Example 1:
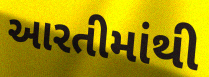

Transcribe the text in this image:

આરતીમાંથી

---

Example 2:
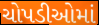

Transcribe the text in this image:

ચોપડીઓમાં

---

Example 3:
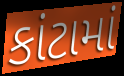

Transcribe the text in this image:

કાંટામાં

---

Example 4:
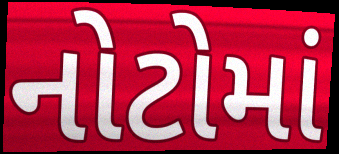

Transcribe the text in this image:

નોટોમાં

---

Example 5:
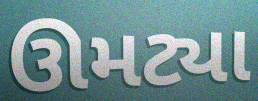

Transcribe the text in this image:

ઊમટ્યા